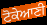
ਟੋਕੇਆਣੀ